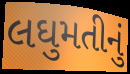
લઘુમતીનું